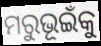
ମରୁଭୂଇଁକୁ